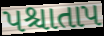
પશ્ચાતાપ